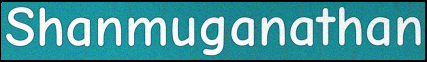
Shanmuganathan